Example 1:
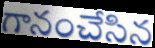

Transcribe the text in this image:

గానంచేసిన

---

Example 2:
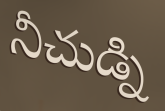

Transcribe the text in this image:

నీచుడ్ని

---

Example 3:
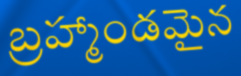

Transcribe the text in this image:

బ్రహ్మాండమైన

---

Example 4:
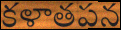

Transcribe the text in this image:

కళాతపన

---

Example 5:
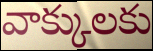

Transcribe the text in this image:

వాక్కులకు